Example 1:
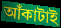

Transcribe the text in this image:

আঁকাটাই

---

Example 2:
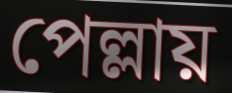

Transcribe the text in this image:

পেল্লায়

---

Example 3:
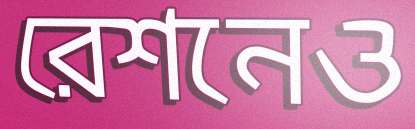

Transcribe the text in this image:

রেশনেও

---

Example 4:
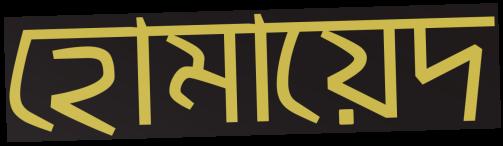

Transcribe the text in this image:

হোমায়েদ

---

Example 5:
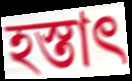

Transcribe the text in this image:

হস্তাৎ